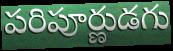
పరిపూర్ణుడగు